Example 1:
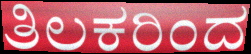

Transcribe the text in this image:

ತಿಲಕರಿಂದ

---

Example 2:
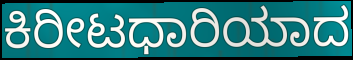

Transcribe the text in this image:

ಕಿರೀಟಧಾರಿಯಾದ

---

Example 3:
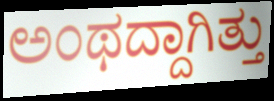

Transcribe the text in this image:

ಅಂಥದ್ದಾಗಿತ್ತು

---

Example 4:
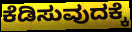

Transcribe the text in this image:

ಕೆಡಿಸುವುದಕ್ಕೆ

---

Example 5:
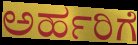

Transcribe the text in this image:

ಅರ್ಹರಿಗೆ